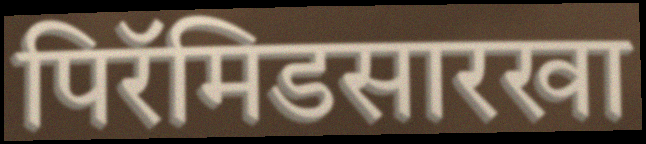
पिरॅमिडसारखा